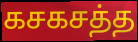
கசகசத்த